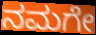
ನಮಗೇ